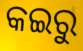
କଇରୁ